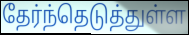
தேர்ந்தெடுத்துள்ள